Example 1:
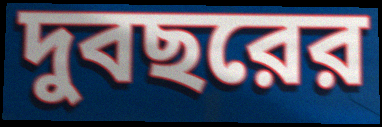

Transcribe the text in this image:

দুবছরের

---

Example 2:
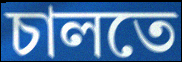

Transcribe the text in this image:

চালতে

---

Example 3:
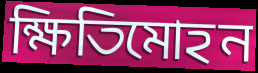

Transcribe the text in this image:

ক্ষিতিমোহন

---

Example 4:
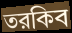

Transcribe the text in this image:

তরকিব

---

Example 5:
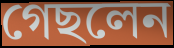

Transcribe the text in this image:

গেছলেন